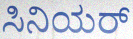
ಸಿನಿಯರ್